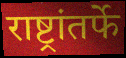
राष्ट्रांतर्फे